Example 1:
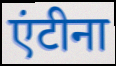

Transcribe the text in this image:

एंटीना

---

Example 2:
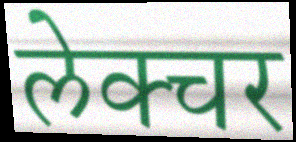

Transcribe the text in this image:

लेक्चर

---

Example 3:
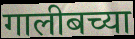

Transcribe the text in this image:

गालीबच्या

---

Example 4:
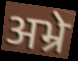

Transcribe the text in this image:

अभ्रे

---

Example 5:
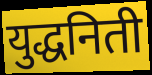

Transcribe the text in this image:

युद्धनिती